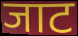
जाट